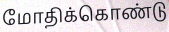
மோதிக்கொண்டு